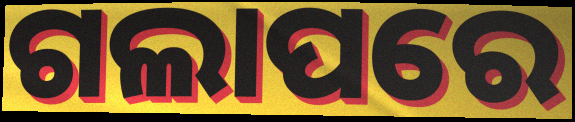
ଗଲାପରେ